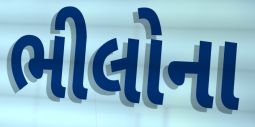
ભીલોના